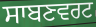
ਸਾਬਣਵਰਟ